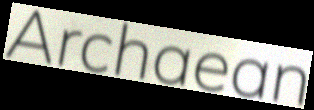
Archaean